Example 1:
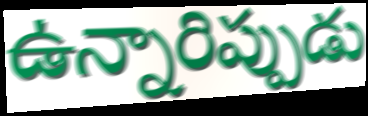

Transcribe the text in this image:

ఉన్నారిప్పుడు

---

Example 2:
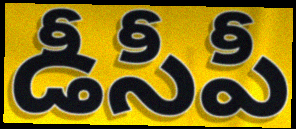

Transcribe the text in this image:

డీసీపీ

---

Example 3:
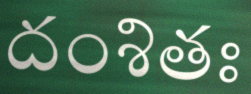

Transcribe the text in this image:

దంశితః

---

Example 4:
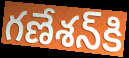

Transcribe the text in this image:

గణేశన్‍కి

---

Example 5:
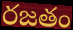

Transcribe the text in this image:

రజతం